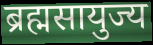
ब्रह्मसायुज्य